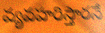
వ్యవహరిస్తారనే